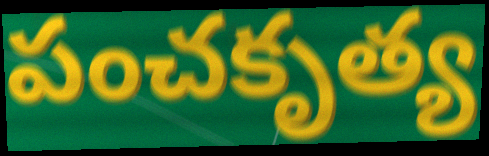
పంచకృత్య